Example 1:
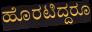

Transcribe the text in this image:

ಹೊರಟಿದ್ದರೂ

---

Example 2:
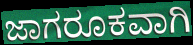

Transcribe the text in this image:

ಜಾಗರೂಕವಾಗಿ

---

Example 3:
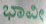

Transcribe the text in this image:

ಭಾವೀ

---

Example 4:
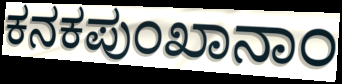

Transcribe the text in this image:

ಕನಕಪುಂಖಾನಾಂ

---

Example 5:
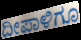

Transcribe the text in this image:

ದೀಪಾಳಿಗೂ